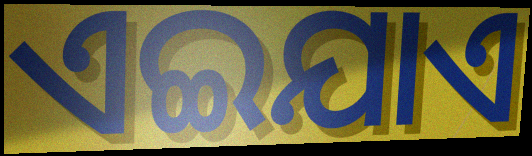
ଏଇଯାଏ